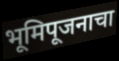
भूमिपूजनाचा